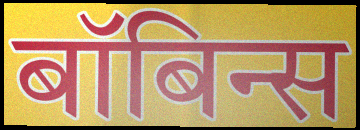
बॉबिन्स